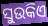
ସୁଉକିଏ